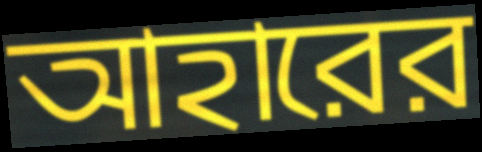
আহারের